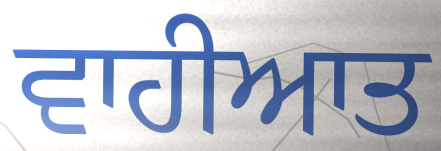
ਵਾਹੀਆਤ